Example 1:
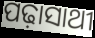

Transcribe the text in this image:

ପଢ଼ାସାଥୀ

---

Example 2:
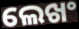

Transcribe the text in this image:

ଲେଖଂ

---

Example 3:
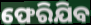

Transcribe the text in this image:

ଫେରିଯିବ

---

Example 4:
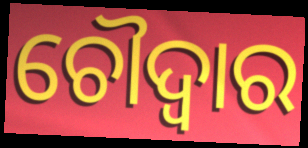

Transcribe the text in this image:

ଚୌଦ୍ବାର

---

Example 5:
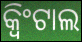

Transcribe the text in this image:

କ୍ୱିଂଟାଲ